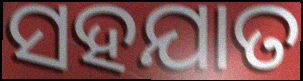
ସହଯାତ